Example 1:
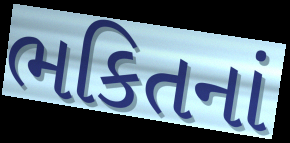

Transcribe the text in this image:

ભકિતનાં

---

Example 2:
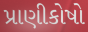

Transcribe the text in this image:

પ્રાણીકોષો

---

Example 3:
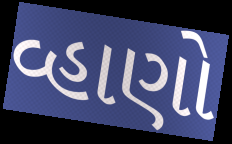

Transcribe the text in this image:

વ્હાણો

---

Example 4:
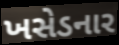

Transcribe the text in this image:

ખસેડનાર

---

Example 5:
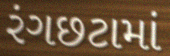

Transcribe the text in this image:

રંગછટામાં